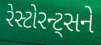
રેસ્ટોરન્ટ્સને